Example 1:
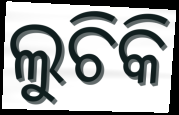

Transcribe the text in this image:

ଲୁଚିକି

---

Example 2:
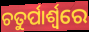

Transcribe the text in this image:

ଚତୁର୍ପାର୍ଶ୍ୱରେ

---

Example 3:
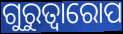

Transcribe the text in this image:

ଗୁରୁତ୍ବାରୋପ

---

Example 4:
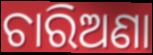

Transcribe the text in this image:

ଚାରିଅଣା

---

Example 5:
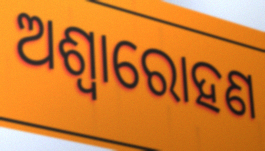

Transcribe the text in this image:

ଅଶ୍ୱାରୋହଣ